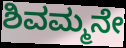
ಶಿವಮ್ಮನೇ